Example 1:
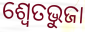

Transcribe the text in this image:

ଶ୍ଵେତଭୁଜା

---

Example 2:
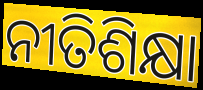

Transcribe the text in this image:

ନୀତିଶିକ୍ଷା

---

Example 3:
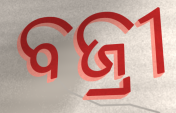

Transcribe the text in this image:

ବଜ୍ରୀ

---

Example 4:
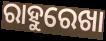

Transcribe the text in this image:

ରାହୁରେଖା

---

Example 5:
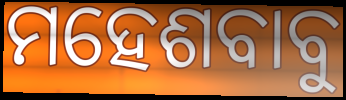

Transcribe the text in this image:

ମହେଶବାବୁ